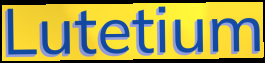
Lutetium